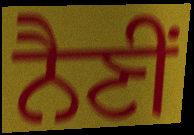
ਨੈਣੀਂ